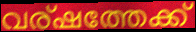
വര്ഷത്തേക്ക്